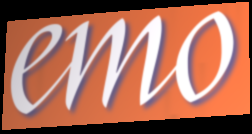
emo